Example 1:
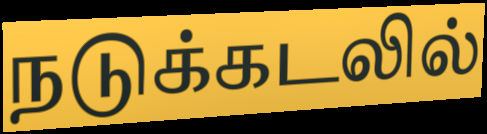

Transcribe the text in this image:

நடுக்கடலில்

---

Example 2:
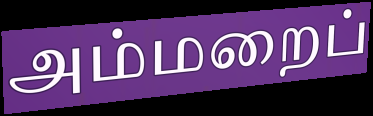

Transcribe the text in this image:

அம்மறைப்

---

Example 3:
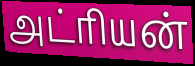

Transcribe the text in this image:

அட்ரியன்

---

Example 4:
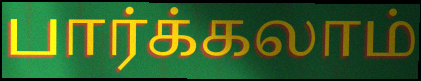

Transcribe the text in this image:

பார்க்கலாம்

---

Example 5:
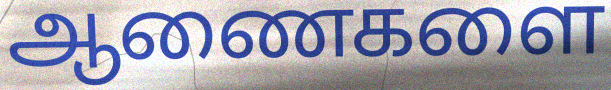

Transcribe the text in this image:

ஆணைகளை